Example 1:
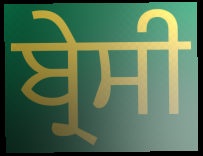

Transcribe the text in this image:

ਬ੍ਰੇਸੀ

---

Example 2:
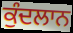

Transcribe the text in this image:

ਕੁੰਦਲਾਨ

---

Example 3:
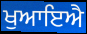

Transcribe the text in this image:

ਖੁਆਇਐ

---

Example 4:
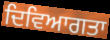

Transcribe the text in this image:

ਦਿਵਿਆਗਤਾ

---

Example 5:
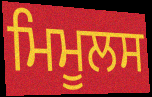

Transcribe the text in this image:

ਮਿਮੂਲਸ